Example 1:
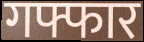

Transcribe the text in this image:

गफ्फार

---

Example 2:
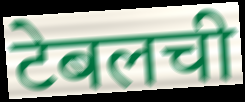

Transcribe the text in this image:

टेबलची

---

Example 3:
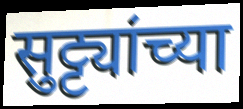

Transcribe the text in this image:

सुट्ट्यांच्या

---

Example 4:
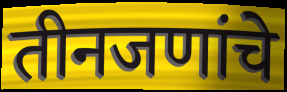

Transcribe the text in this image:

तीनजणांचे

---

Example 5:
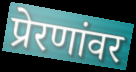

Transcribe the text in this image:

प्रेरणांवर